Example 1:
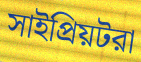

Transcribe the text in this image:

সাইপ্রিয়টরা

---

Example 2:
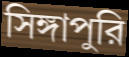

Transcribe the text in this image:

সিঙ্গাপুরি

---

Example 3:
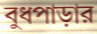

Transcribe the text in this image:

বুধপাড়ার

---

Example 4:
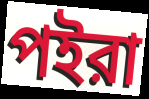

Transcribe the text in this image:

পইরা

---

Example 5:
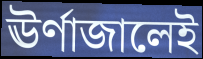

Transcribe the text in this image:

ঊর্ণাজালেই